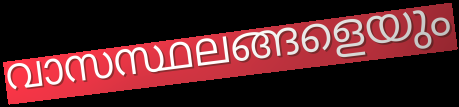
വാസസ്ഥലങ്ങളെയും